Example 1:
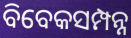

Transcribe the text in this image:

ବିବେକସମ୍ପନ୍ନ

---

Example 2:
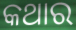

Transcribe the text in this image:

କଥାର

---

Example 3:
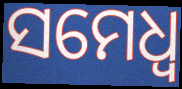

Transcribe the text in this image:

ସମେଧ୍ୱ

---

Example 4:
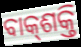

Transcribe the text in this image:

ବାକ୍‍ଶକ୍ତି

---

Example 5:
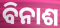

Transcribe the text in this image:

ବିନାଶ